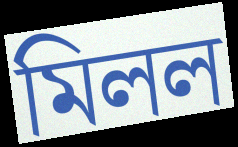
মিলল